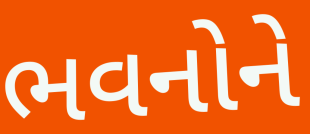
ભવનોને